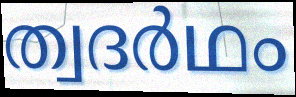
ത്വദർഥം